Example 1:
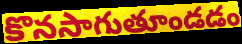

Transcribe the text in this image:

కొనసాగుతూండడం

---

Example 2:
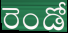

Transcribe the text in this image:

రెండో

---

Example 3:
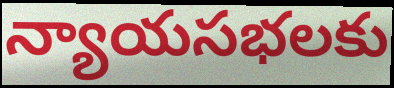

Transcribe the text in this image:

న్యాయసభలకు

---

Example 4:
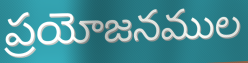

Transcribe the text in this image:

ప్రయోజనముల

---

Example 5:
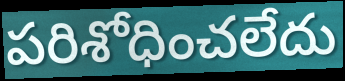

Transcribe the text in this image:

పరిశోధించలేదు